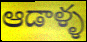
ఆడాళ్ళ